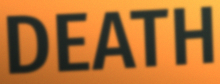
DEATH